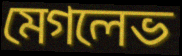
মেগলেভ